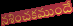
నశించకముందే